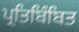
ਪ੍ਰਤਿਬਿੰਬਿਤ